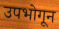
उपभोगून